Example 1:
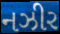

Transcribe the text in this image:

નઝીર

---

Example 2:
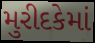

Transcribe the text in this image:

મુરીદકેમાં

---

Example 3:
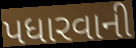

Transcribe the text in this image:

પધારવાની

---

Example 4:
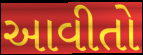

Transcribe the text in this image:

આવીતો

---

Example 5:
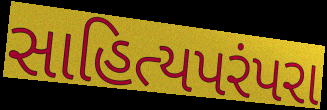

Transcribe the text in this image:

સાહિત્યપરંપરા